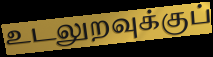
உடலுறவுக்குப்